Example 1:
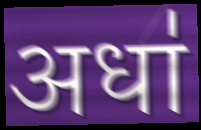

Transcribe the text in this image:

अधा॑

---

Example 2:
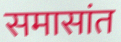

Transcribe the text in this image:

समासांत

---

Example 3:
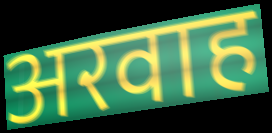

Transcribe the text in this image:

अरवाह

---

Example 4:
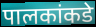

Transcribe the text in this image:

पालकांकडे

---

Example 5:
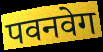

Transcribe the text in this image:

पवनवेग